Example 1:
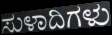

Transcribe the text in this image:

ಸುಳಾದಿಗಳು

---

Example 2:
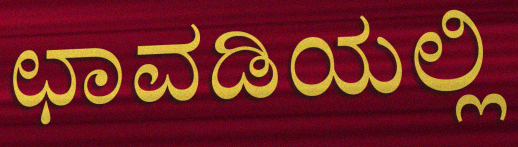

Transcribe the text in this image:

ಛಾವಡಿಯಲ್ಲಿ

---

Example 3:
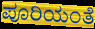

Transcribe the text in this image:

ಪೂರಿಯಂತೆ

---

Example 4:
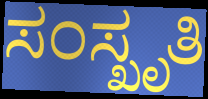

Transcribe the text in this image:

ಸಂಸ್ಖೃತಿ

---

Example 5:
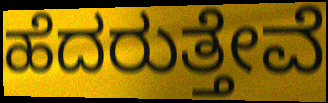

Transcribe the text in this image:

ಹೆದರುತ್ತೇವೆ